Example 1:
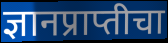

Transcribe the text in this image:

ज्ञानप्राप्तीचा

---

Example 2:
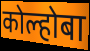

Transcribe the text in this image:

कोल्होबा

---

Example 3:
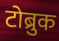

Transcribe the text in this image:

टोब्रुक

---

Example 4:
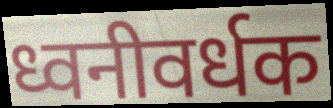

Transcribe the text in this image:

ध्वनीवर्धक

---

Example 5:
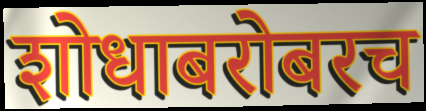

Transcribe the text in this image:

शोधाबरोबरच